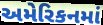
અમેરિકનમાં